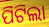
ପିଟିଲା